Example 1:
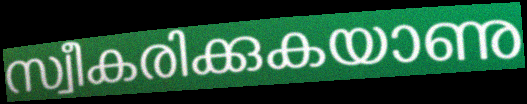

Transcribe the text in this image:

സ്വീകരിക്കുകയാണു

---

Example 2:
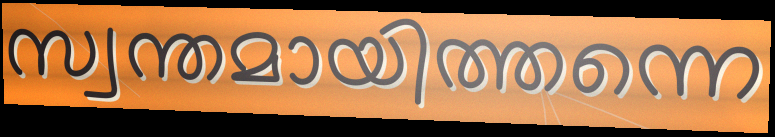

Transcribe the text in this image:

സ്വന്തമായിത്തന്നെ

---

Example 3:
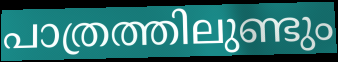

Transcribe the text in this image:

പാത്രത്തിലുണ്ടും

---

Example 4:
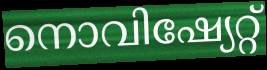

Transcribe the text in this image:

നൊവിഷ്യേറ്റ്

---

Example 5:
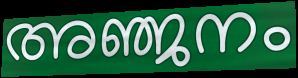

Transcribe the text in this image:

അഞ്ജനം